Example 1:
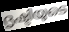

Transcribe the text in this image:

ദൃഷ്ടിയുടെ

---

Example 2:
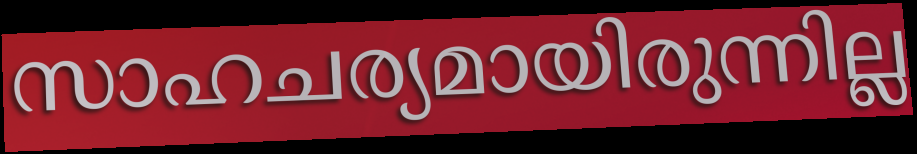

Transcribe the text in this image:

സാഹചര്യമായിരുന്നില്ല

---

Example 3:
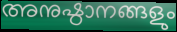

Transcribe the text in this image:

അനുഷ്ഠാനങ്ങളും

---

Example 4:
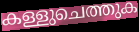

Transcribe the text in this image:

കള്ളുചെത്തുക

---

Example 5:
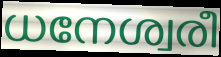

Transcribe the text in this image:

ധനേശ്വരീ